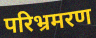
परिभ्रमरण